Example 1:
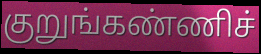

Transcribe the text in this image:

குறுங்கண்ணிச்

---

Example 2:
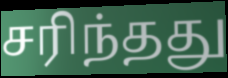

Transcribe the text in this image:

சரிந்தது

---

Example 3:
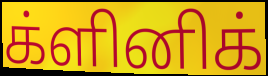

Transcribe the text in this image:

க்ளினிக்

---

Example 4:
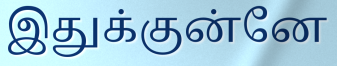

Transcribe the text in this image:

இதுக்குன்னே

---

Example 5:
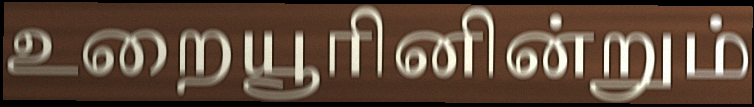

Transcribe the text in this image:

உறையூரினின்றும்